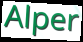
Alper